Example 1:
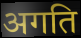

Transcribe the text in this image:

अगति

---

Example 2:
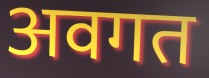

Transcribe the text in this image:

अवगत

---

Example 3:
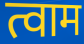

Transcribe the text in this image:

त्वाम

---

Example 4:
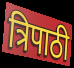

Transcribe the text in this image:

त्रिपाठी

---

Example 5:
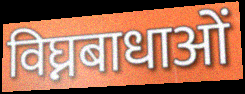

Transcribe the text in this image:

विघ्नबाधाओं